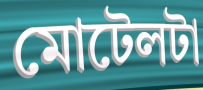
মোটেলটা